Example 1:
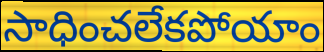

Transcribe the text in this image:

సాధించలేకపోయాం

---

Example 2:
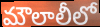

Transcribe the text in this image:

మౌలాలీలో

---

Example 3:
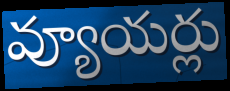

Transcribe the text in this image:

వ్యూయర్లు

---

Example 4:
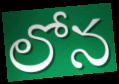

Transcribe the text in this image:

లోన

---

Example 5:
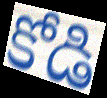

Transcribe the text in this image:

కోడి